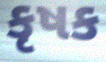
કૃષક